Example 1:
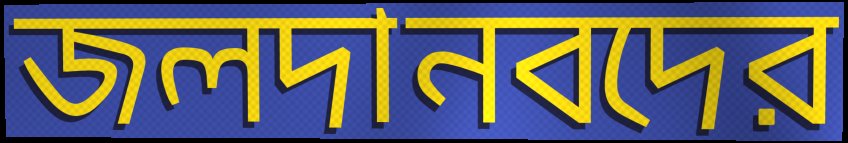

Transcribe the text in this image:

জলদানবদের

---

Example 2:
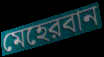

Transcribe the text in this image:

মেহেরবান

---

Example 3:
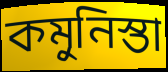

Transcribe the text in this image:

কমুনিস্তা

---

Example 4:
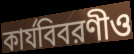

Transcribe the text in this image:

কার্যবিবরণীও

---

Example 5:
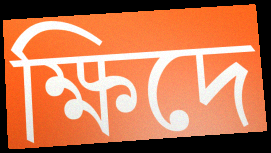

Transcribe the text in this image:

ক্ষিদে